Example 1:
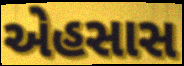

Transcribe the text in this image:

એહસાસ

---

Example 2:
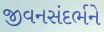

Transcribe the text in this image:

જીવનસંદર્ભને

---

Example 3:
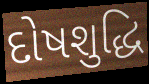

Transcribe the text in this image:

દોષશુદ્ધિ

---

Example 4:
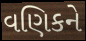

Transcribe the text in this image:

વણિકને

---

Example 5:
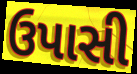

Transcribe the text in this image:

ઉપાસી